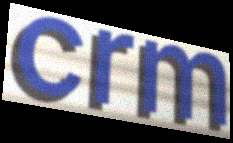
crm